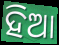
ହିଆ